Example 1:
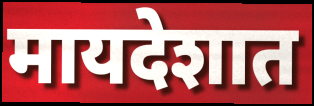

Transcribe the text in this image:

मायदेशात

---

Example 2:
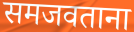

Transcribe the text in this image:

समजवताना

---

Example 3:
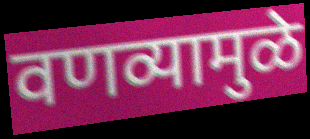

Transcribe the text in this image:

वणव्यामुळे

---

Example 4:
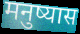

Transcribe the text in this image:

मनुष्यास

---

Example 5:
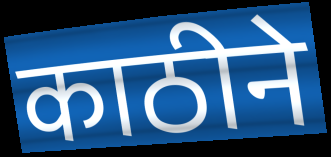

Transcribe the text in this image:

काठीने